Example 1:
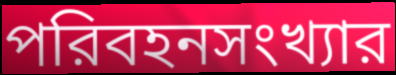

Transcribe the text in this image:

পরিবহনসংখ্যার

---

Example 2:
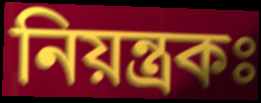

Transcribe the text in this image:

নিয়ন্ত্রকঃ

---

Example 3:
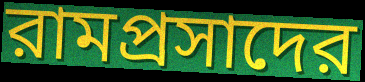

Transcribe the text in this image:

রামপ্রসাদের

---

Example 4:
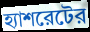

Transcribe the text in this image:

হ্যাশরেটের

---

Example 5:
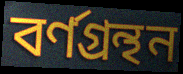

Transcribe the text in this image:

বর্ণগ্রন্থন